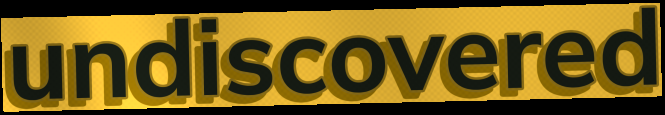
undiscovered